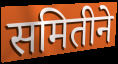
समितीने